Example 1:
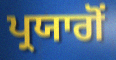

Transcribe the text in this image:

ਪ੍ਰਯਾਗੋਂ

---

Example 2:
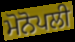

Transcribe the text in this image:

ਮੋਨੋਪਲੀ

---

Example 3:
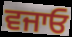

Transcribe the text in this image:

ਵਜਾਓ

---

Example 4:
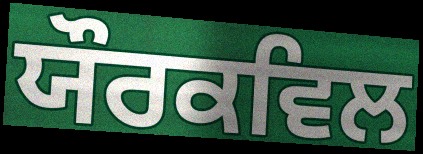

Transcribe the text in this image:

ਯੌਰਕਵਿਲ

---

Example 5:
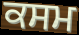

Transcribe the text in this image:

ਕਸਮ